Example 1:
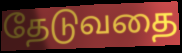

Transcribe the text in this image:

தேடுவதை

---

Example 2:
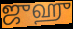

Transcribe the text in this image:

ஜுஹு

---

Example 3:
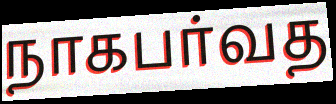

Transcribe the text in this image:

நாகபர்வத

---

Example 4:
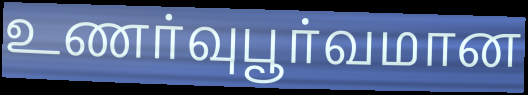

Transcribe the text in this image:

உணர்வுபூர்வமான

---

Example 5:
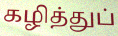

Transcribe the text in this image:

கழித்துப்